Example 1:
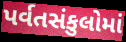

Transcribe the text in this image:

પર્વતસંકુલોમાં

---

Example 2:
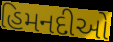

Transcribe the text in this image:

હિમનદીઓ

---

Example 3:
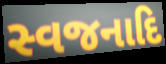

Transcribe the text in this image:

સ્વજનાદિ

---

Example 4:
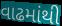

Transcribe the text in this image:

વાઢમાંથી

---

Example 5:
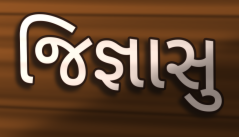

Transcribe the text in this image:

જિજ્ઞાસુ